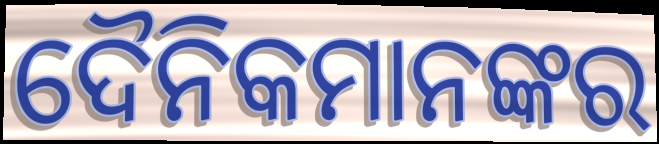
ଦୈନିକମାନଙ୍କର